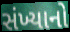
સંખ્યાનો